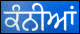
ਕੰਨੀਆਂ